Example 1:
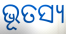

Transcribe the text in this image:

ଭୂତସ୍ୟ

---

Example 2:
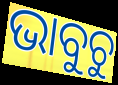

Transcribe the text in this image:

ଭାବୁଚୁ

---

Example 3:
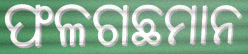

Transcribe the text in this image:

ଫଳଗଛମାନ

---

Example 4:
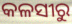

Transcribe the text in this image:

କଳସୀରୁ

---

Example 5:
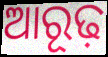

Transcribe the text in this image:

ଆରୂଢ଼